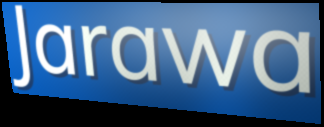
Jarawa